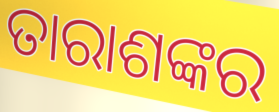
ତାରାଶଙ୍କର